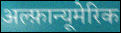
अल्फ़ान्यूमेरिक